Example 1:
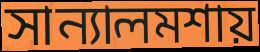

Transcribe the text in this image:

সান্যালমশায়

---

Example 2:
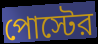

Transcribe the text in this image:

পোস্টের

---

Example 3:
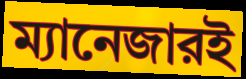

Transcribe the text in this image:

ম্যানেজারই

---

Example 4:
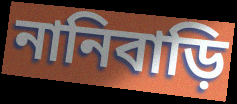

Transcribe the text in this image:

নানিবাড়ি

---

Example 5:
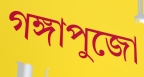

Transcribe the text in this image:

গঙ্গাপুজো